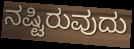
ನಷ್ಟಿರುವುದು